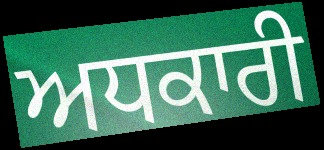
ਅਧਕਾਰੀ